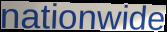
nationwide